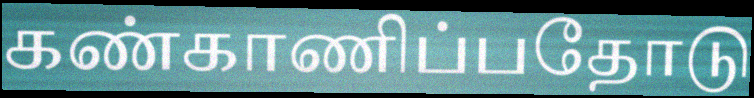
கண்காணிப்பதோடு